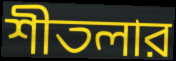
শীতলার